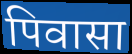
पिवासा